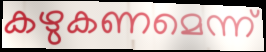
കഴുകണമെന്ന്